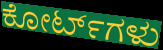
ಕೋರ್ಟ್‌ಗಳು